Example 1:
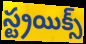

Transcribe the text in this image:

స్ట్రయిక్స్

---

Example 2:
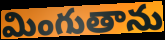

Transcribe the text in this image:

మింగుతాను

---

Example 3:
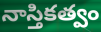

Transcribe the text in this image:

నాస్తికత్వం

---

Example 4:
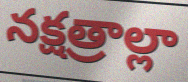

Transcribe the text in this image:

నక్షత్రాల్లా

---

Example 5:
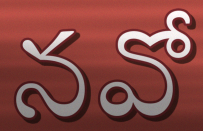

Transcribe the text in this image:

నవో